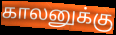
காலனுக்கு